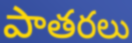
పాతరలు